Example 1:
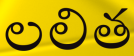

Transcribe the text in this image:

లలిత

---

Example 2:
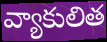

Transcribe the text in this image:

వ్యాకులిత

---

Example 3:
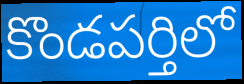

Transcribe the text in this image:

కొండపర్తిలో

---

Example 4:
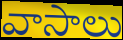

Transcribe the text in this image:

వాసాలు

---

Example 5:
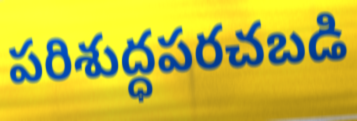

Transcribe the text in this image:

పరిశుద్ధపరచబడి